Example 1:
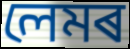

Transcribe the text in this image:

লেমৰ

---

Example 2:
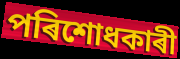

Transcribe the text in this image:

পৰিশোধকাৰী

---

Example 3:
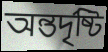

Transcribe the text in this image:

অন্তৰ্দৃষ্টি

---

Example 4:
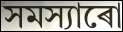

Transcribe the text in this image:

সমস্যাৰো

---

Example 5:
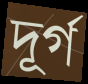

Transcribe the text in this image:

দূৰ্গ